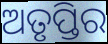
ଅତୃପ୍ତିର